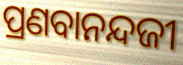
ପ୍ରଣବାନନ୍ଦଜୀ